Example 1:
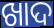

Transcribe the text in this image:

ଖାଦ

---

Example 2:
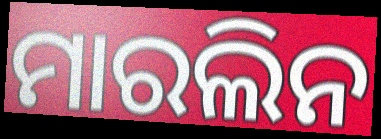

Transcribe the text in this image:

ମାରଲିନ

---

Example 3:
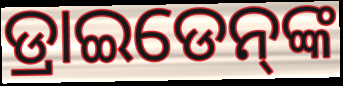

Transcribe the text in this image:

ଡ୍ରାଇଡେନ୍‌ଙ୍କ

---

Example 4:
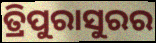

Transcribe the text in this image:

ତ୍ରିପୁରାସୁରର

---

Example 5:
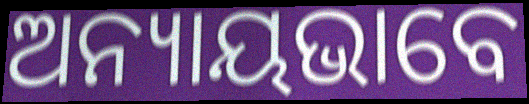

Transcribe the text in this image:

ଅନ୍ୟାୟଭାବେ